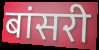
बांसरी